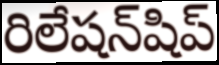
రిలేషన్‌షిప్